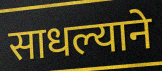
साधल्याने